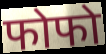
फोफो